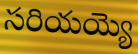
సరియయ్యె